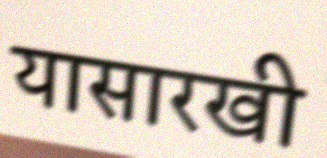
यासारखी